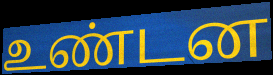
உண்டன